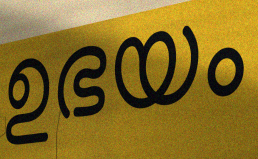
ഉഭയം